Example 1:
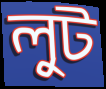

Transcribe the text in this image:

লুট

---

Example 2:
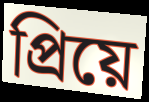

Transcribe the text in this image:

প্রিয়ে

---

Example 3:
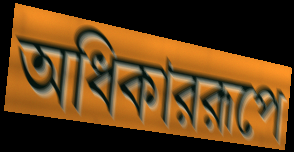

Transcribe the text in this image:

অধিকাররূপে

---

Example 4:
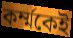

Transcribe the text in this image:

কর্ম্মকেই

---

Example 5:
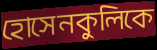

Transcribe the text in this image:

হোসেনকুলিকে